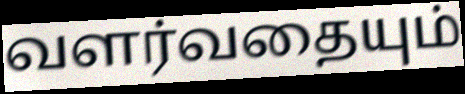
வளர்வதையும்